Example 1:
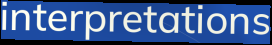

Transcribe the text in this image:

interpretations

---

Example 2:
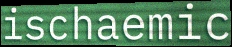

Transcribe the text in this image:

ischaemic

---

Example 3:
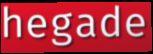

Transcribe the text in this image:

hegade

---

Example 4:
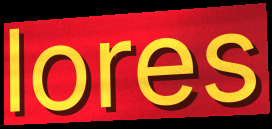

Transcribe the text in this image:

lores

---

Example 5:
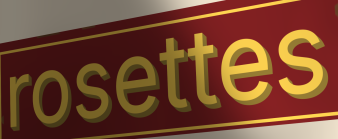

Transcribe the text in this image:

rosettes